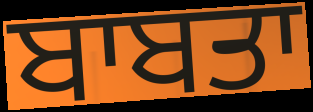
ਬਾਬਤਾ